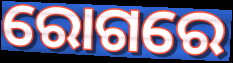
ରୋଗରେ